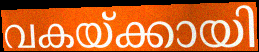
വകയ്ക്കായി